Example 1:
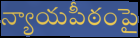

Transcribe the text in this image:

న్యాయపీఠంపై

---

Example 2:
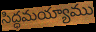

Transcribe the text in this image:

సిద్ధమయ్యాము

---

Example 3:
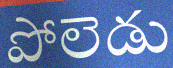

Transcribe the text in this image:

పోలెడు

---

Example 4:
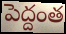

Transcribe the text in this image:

పెద్దంత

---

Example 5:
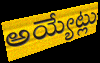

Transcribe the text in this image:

అయ్యేట్లు